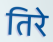
तिरे